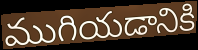
ముగియడానికి